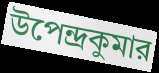
উপেন্দ্রকুমার